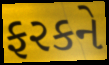
ફરકને